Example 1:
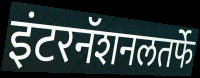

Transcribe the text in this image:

इंटरनॅशनलतर्फे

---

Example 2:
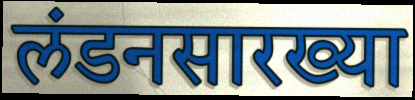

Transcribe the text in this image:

लंडनसारख्या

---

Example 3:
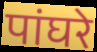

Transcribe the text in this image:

पांघरे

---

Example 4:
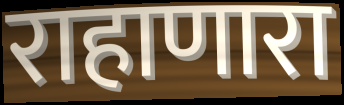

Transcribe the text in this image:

राहाणारा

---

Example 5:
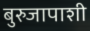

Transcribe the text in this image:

बुरुजापाशी